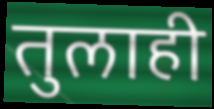
तुलाही